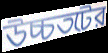
উচ্চতটের